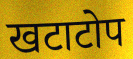
खटाटोप